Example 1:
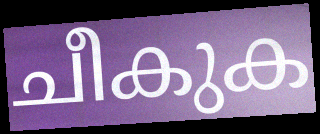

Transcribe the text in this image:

ചീകുക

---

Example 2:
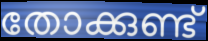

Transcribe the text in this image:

തോക്കുണ്ട്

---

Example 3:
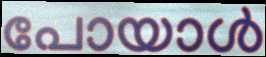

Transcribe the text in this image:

പോയാൾ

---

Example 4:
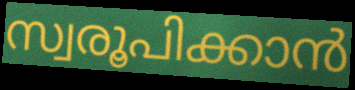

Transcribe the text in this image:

സ്വരൂപിക്കാൻ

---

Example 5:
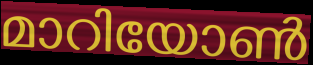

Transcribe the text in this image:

മാറിയോൺ